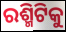
ରଶ୍ମିଟିକୁ